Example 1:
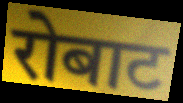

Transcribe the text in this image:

रोबाट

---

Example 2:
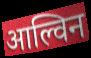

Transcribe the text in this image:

आल्विन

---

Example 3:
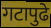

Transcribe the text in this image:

गटापुढे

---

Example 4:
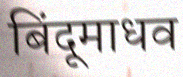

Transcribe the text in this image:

बिंदूमाधव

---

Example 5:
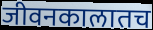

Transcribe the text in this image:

जीवनकालातच